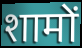
शामों